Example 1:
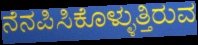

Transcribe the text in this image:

ನೆನಪಿಸಿಕೊಳ್ಳುತ್ತಿರುವ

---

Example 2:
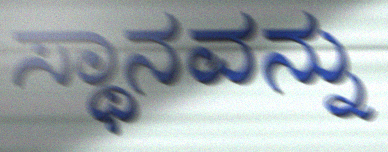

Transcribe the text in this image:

ಸ್ಥಾನವನ್ನು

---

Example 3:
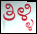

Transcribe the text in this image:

ತಿಳ್ಳಿ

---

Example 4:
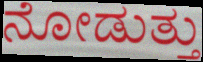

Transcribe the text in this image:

ನೋಡುತ್ತು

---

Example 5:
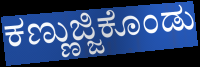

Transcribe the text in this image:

ಕಣ್ಣುಜ್ಜಿಕೊಂಡು